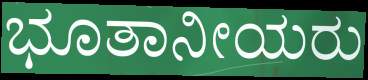
ಭೂತಾನೀಯರು